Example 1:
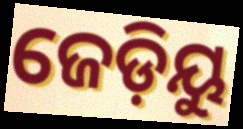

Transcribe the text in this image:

ଜେଡ଼ିୟୁ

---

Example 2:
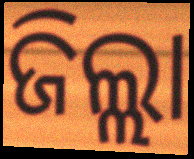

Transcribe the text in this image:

ଜିଲ୍ଲା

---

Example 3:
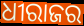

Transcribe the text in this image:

ଧୀରାଜର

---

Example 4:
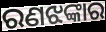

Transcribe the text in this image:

ରଣଝଙ୍କାର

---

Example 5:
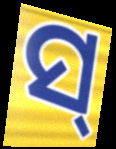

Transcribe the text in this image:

ସ୍